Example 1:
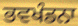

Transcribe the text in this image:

ਭਵਖੰਡਨਾ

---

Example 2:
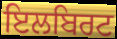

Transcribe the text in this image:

ਇਲਬਿਰਟ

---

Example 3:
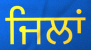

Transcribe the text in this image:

ਜਿਲਾਂ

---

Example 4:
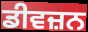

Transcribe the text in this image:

ਡੀਵਜ਼ਨ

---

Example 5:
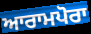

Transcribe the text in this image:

ਆਰਾਮਪੋਰਾ